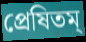
প্রেষিতম্